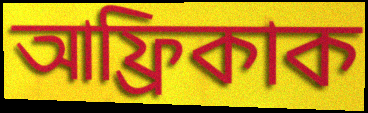
আফ্ৰিকাক